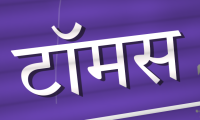
टॉमस